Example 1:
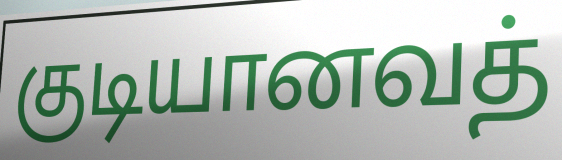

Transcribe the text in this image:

குடியானவத்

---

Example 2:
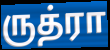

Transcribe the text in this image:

ருத்ரா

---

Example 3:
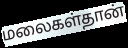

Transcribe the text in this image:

மலைகள்தான்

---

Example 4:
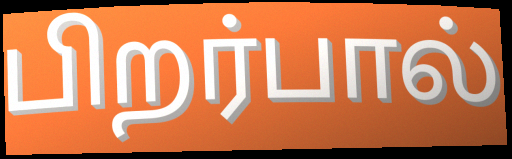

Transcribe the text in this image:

பிறர்பால்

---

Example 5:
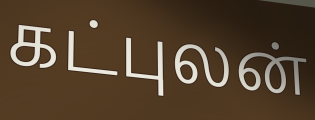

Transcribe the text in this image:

கட்புலன்